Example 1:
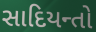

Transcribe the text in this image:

સાદિયન્તો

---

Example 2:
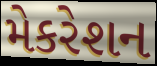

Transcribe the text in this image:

મેકરેશન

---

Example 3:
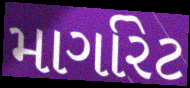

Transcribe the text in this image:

માર્ગારેટ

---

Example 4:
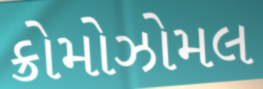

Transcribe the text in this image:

ક્રોમોઝોમલ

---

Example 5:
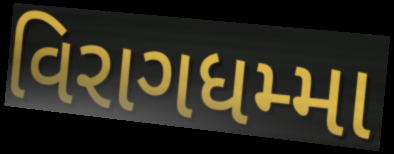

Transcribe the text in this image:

વિરાગધમ્મા